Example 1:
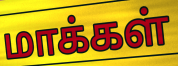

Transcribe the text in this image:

மாக்கள்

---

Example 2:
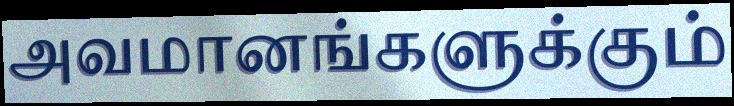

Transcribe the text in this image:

அவமானங்களுக்கும்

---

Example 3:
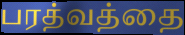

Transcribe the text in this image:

பரத்வத்தை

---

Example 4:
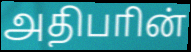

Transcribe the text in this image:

அதிபரின்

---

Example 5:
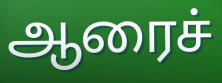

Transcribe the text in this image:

ஆரைச்